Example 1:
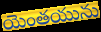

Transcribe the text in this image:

యెంతయును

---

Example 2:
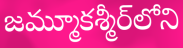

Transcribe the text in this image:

జమ్మూకశ్మీర్‌లోని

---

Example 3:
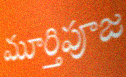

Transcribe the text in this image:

మూర్తిపూజ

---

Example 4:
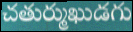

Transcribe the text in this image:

చతుర్ముఖుడగు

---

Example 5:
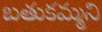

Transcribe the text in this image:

బతుకమ్మని